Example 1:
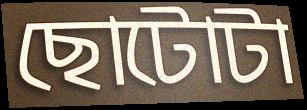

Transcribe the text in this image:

ছোটোটা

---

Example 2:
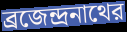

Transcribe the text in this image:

ব্রজেন্দ্রনাথের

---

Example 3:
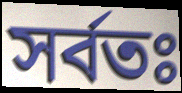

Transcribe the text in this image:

সর্বতঃ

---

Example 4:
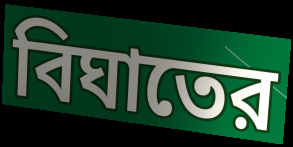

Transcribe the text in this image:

বিঘাতের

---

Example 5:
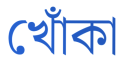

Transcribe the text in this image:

খোঁকা